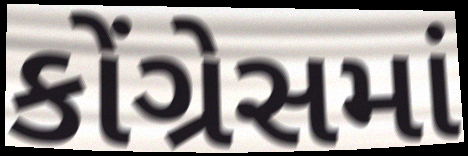
કોંગ્રેસમાં